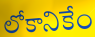
లోకానికేం